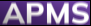
APMS